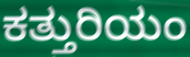
ಕತ್ತುರಿಯಂ